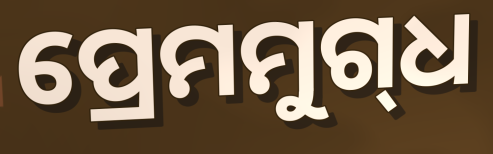
ପ୍ରେମମୁଗ୍‌ଧ